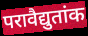
परावैद्युतांक